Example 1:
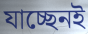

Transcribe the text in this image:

যাচ্ছেনই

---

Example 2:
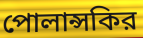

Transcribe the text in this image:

পোলান্সকির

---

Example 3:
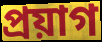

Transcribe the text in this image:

প্রয়াগ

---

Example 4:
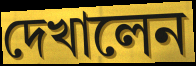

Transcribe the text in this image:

দেখালেন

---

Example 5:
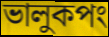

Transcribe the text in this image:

ভালুকপং